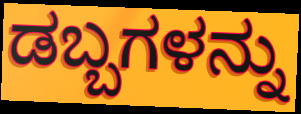
ಡಬ್ಬಗಳನ್ನು